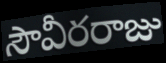
సౌవీరరాజు